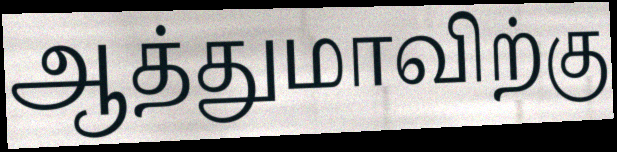
ஆத்துமாவிற்கு